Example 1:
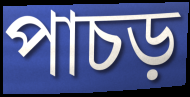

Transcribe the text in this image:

পাচড়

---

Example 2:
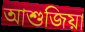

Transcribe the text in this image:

আশুজিয়া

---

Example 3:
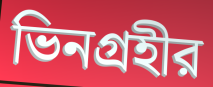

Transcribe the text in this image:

ভিনগ্রহীর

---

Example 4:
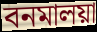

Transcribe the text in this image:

বনমালয়া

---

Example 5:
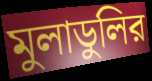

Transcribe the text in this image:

মুলাডুলির